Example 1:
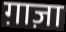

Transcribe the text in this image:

ग़ाज़ा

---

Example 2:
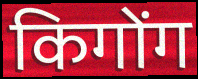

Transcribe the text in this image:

किगोंग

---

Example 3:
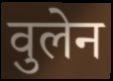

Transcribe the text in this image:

वुलेन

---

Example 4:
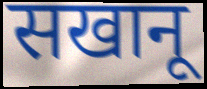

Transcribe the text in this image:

सखानू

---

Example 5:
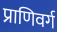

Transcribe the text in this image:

प्राणिवर्ग